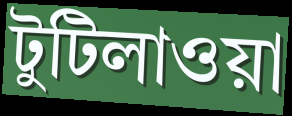
টুটিলাওয়া